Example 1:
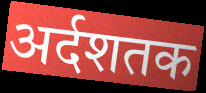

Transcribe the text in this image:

अर्दशतक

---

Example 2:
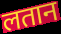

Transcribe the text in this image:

लतान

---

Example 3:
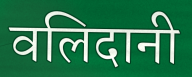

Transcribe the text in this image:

वलिदानी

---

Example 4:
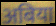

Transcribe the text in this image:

अबिया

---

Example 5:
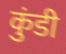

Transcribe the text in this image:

कुंडी